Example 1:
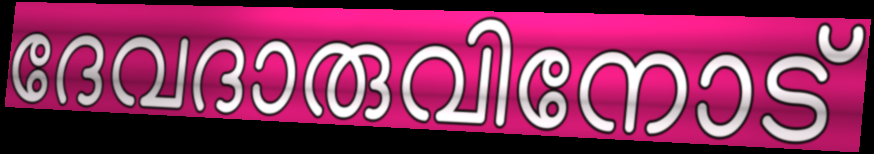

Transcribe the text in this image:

ദേവദാരുവിനോട്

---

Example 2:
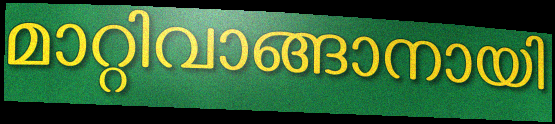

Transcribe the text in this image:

മാറ്റിവാങ്ങാനായി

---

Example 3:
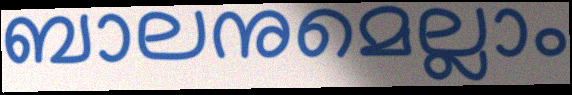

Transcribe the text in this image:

ബാലനുമെല്ലാം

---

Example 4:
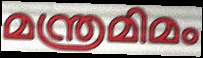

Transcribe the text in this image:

മന്ത്രമിമം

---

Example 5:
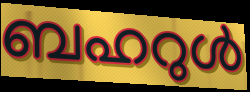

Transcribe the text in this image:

ബഹറുൾ